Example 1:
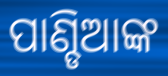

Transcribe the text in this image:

ପାଣ୍ଡିଆଙ୍କ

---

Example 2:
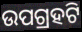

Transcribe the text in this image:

ଉପଗ୍ରହଟି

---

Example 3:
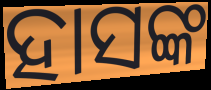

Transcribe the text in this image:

ହାସଙ୍କ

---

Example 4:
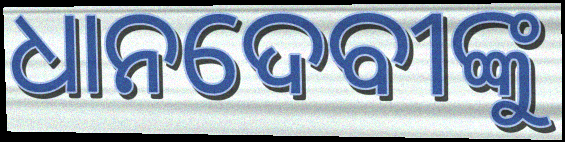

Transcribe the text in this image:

ଧାନଦେବୀଙ୍କୁ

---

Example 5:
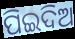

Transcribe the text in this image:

ପିଇଦିଅ